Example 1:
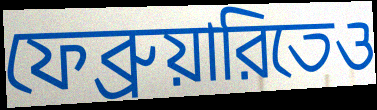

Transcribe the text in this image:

ফেব্রুয়ারিতেও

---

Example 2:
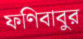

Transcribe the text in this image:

ফণিবাবুর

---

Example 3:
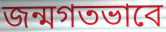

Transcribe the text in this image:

জন্মগতভাবে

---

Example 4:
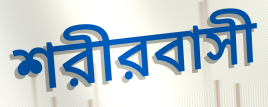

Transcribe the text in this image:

শরীরবাসী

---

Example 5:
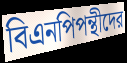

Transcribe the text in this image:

বিএনপিপন্থীদের